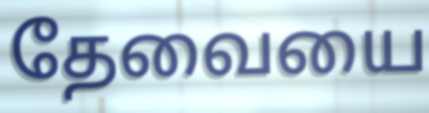
தேவையை